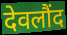
देवलौंद